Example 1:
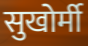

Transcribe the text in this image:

सुखोर्मी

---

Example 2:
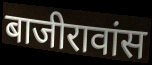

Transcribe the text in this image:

बाजीरावांस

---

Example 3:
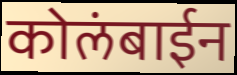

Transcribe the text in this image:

कोलंबाईन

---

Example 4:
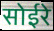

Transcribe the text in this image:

सोईरे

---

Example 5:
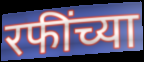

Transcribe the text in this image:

रफींच्या